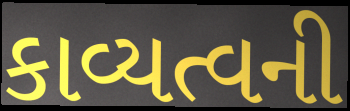
કાવ્યત્વની